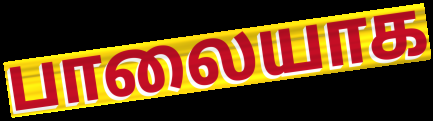
பாலையாக